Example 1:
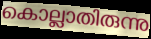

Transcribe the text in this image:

കൊല്ലാതിരുന്നു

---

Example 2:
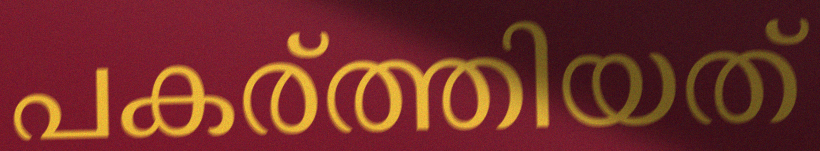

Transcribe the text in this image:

പകര്ത്തിയത്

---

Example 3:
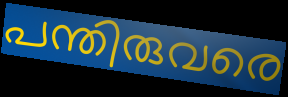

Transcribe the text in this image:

പന്തിരുവരെ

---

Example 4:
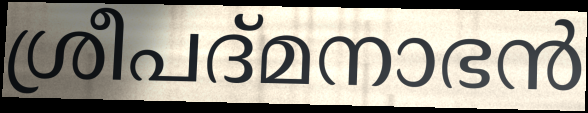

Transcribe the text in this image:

ശ്രീപദ്മനാഭൻ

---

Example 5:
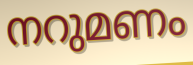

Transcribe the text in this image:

നറുമണം